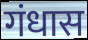
गंधास